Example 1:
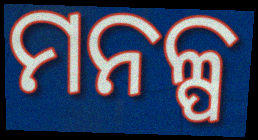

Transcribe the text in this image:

ମନଳ୍ପ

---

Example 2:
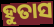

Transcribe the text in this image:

ହୁତାସ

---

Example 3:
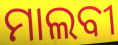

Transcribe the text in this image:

ମାଲବୀ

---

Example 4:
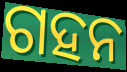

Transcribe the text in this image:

ଗହନ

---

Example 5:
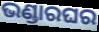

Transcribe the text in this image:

ଭଣ୍ଡାରଘର